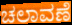
ಚಲಾವಣೆ